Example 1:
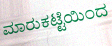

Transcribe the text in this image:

ಮಾರುಕಟ್ಟೆಯಿಂದ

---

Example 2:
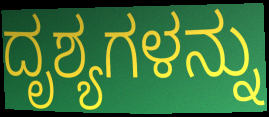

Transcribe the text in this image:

ದೃಶ್ಯಗಳನ್ನು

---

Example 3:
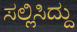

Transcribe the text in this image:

ಸಲ್ಲಿಸಿದ್ದು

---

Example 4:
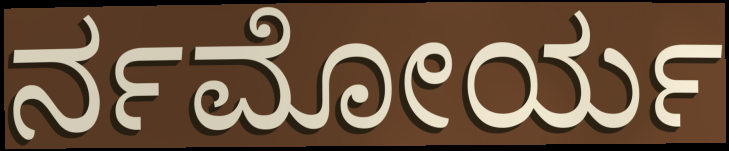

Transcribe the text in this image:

ರ್ನಮೋರ್ಯ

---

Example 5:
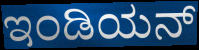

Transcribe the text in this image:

ಇಂಡಿಯನ್